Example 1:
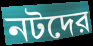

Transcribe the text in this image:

নটদের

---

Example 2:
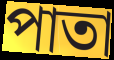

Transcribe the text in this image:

পাতা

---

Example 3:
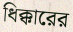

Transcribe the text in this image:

ধিক্কারের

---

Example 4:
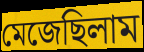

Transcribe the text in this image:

মেজেছিলাম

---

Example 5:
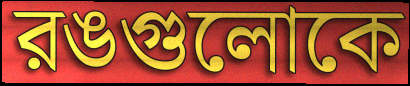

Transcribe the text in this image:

রঙগুলোকে